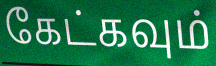
கேட்கவும்